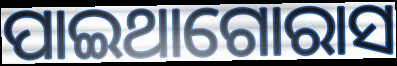
ପାଇଥାଗୋରାସ